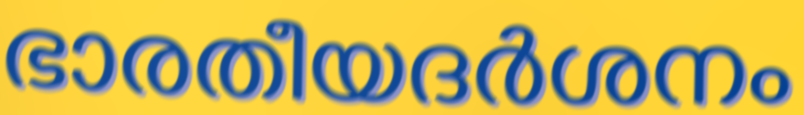
ഭാരതീയദർശനം